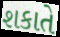
શકાતે